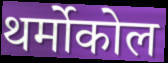
थर्मोकोल